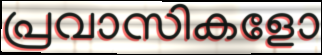
പ്രവാസികളോ